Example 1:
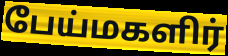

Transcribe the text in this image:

பேய்மகளிர்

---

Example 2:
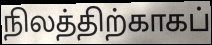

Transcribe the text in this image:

நிலத்திற்காகப்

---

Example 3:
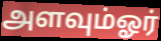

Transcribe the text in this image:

அளவும்ஓர்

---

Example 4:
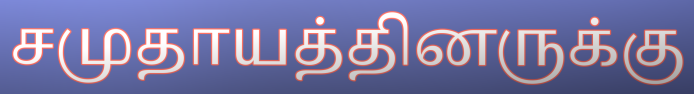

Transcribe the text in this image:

சமுதாயத்தினருக்கு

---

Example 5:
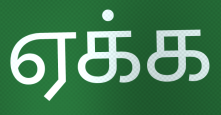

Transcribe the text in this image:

ஏக்க